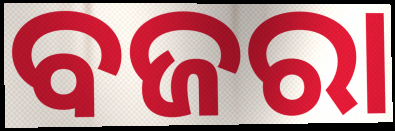
ବଜରା